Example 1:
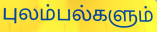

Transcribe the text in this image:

புலம்பல்களும்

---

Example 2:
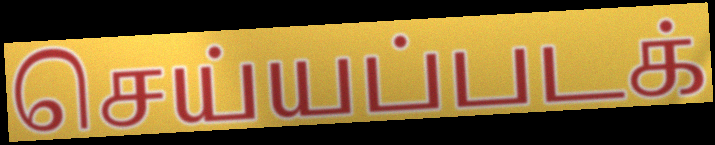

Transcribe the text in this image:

செய்யப்படக்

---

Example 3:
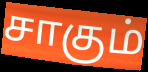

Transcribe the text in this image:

சாகும்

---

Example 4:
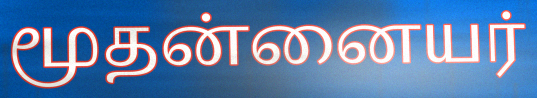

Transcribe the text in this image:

மூதன்னையர்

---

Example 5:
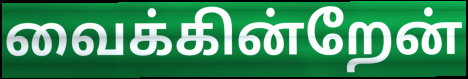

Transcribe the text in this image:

வைக்கின்றேன்